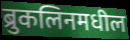
ब्रुकलिनमधील